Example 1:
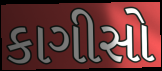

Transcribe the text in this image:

કાગીસો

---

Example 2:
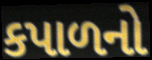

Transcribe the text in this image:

કપાળનો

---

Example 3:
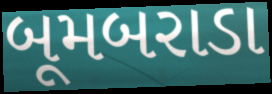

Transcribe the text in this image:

બૂમબરાડા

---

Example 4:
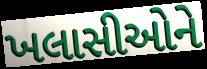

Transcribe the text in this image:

ખલાસીઓને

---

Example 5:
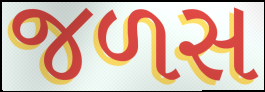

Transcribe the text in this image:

જળસ